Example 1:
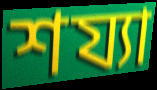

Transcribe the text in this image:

শয্যা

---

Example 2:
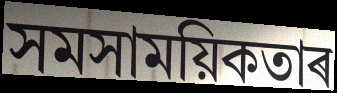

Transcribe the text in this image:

সমসাময়িকতাৰ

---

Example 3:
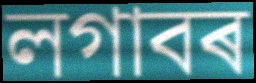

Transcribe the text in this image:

লগাবৰ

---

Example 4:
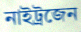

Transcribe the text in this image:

নাইট্ৰজেন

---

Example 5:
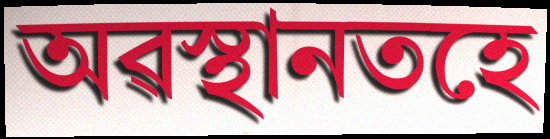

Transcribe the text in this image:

অৱস্থানতহে